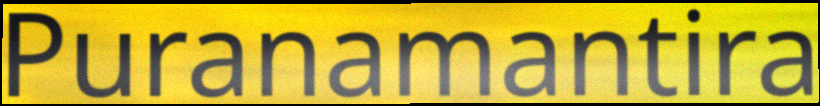
Puranamantira